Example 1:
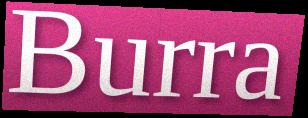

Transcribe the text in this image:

Burra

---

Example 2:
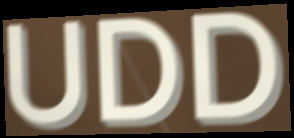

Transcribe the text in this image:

UDD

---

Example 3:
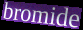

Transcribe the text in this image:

bromide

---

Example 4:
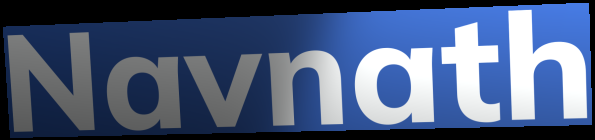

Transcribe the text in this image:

Navnath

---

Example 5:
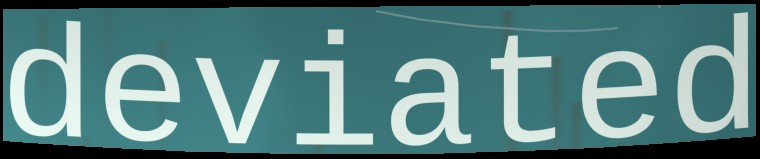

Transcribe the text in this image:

deviated